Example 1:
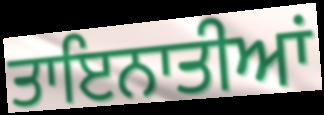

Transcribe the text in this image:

ਤਾਇਨਾਤੀਆਂ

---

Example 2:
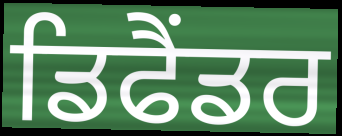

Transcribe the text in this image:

ਡਿਫੈਂਡਰ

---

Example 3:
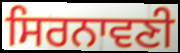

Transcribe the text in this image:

ਸਿਰਨਾਵਣੀ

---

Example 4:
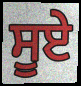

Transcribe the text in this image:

ਸੂਏ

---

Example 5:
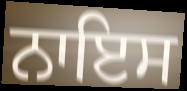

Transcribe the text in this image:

ਨਾਇਸ